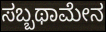
ಸಬ್ಬಥಾಮೇನ